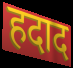
हदाद